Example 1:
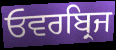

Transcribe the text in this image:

ਓਵਰਬ੍ਰਿਜ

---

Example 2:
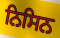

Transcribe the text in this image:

ਨਿਸਿਨ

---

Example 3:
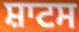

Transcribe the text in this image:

ਸ਼ਾਟਸ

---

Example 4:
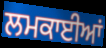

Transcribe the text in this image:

ਲਮਕਾਈਆਂ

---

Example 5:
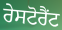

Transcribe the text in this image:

ਰੇਸਟੋਰੈਂਟ